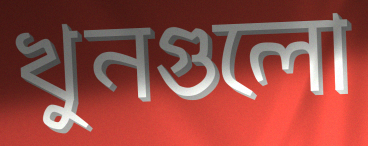
খুনগুলো